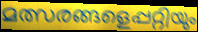
മത്സരങ്ങളെപ്പറ്റിയും